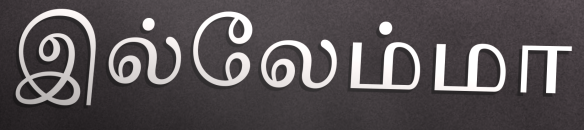
இல்லேம்மா